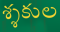
శ్శకుల